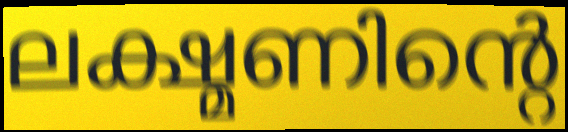
ലക്ഷ്മണിന്റെ